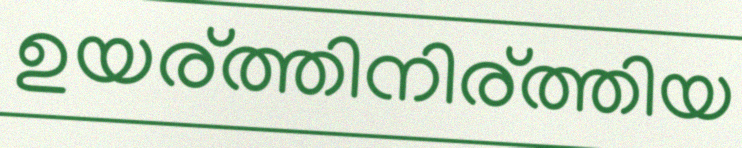
ഉയര്ത്തിനിര്ത്തിയ